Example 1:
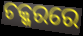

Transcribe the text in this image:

ଚକ୍କରରେ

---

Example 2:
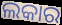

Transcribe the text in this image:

ଲକାର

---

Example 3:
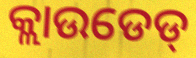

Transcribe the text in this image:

କ୍ଲାଉଡେଡ୍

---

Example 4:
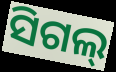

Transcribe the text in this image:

ସିଗଲ୍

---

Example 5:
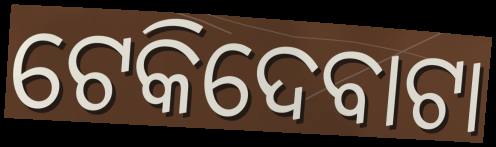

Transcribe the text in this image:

ଟେକିଦେବାଟା